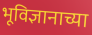
भूविज्ञानाच्या